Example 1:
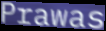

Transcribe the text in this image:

Prawas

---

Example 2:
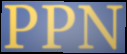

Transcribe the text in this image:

PPN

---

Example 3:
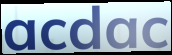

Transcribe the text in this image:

acdac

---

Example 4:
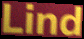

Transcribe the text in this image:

Lind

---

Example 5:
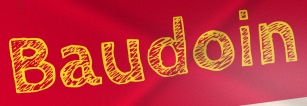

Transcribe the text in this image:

Baudoin